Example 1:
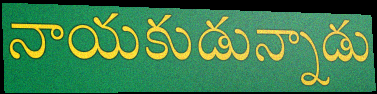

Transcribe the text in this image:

నాయకుడున్నాడు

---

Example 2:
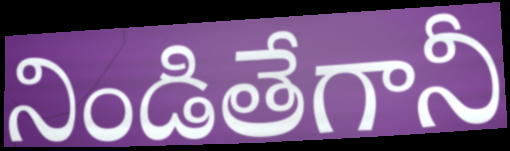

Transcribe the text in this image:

నిండితేగానీ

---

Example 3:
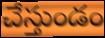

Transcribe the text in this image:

చేస్తుండం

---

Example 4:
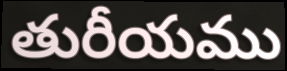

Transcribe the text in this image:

తురీయము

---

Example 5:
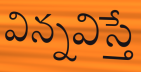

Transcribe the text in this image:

విన్నవిస్తే